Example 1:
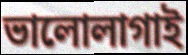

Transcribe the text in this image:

ভালোলাগাই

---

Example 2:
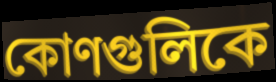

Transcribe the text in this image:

কোণগুলিকে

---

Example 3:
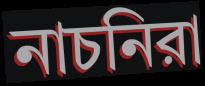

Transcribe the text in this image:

নাচনিরা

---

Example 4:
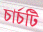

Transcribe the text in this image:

চার্চটি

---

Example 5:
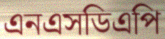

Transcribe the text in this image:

এনএসডিএপি